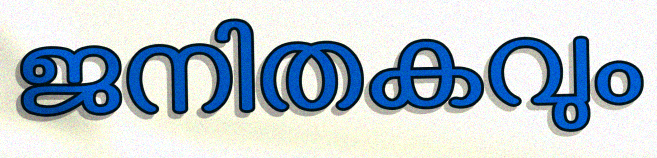
ജനിതകവും